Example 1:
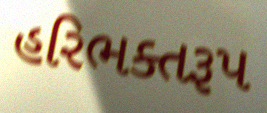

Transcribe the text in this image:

હરિભક્તરૂપ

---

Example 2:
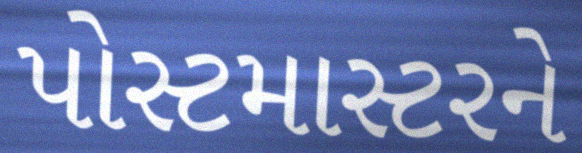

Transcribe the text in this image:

પોસ્ટમાસ્ટરને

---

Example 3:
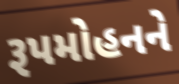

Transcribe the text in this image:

રૂપમોહનને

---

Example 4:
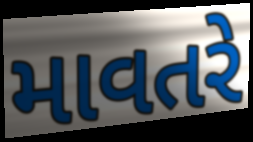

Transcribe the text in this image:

માવતરે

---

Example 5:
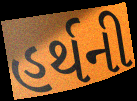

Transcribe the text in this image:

હર્થની